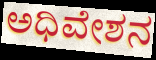
ಅಧಿವೇಶನ